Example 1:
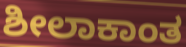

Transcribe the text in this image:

ಶೀಲಾಕಾಂತ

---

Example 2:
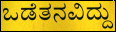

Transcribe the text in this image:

ಒಡೆತನವಿದ್ದು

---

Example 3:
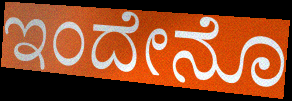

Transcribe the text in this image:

ಇಂದೇನೊ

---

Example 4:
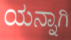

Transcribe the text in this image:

ಯನ್ನಾಗಿ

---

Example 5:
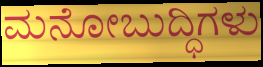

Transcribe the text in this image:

ಮನೋಬುದ್ಧಿಗಳು